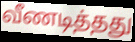
வீணடித்தது